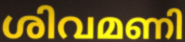
ശിവമണി